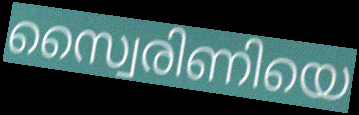
സ്വൈരിണിയെ